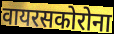
वायरसकोरोना